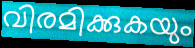
വിരമിക്കുകയും